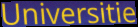
Universitie